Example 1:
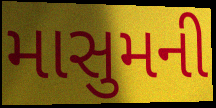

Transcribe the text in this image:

માસુમની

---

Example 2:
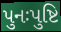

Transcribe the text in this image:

પુનઃપુષ્ટિ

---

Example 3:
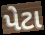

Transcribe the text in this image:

પેટા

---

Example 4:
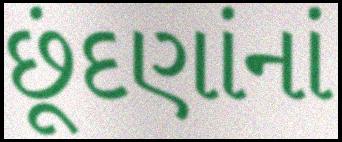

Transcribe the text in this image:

છૂંદણાંનાં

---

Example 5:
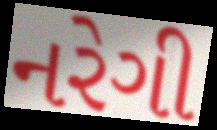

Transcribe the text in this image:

નરેગી